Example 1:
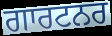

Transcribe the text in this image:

ਗਾਰਟਨਰ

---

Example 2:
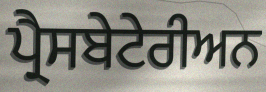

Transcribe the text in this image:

ਪ੍ਰੈਸਬੇਟੇਰੀਅਨ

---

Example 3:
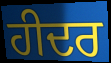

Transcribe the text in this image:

ਹੀਦਰ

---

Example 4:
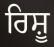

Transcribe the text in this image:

ਰਿਸ਼ੂ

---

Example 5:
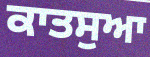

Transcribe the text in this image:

ਕਾਤਸੁਆ